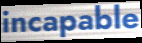
incapable